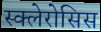
स्क्लेरोसिस